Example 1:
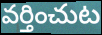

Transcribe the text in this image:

వర్తించుట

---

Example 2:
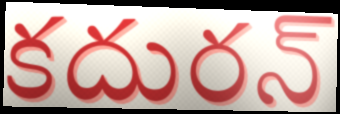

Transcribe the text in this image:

కదురన్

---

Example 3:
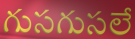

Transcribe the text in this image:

గుసగుసలే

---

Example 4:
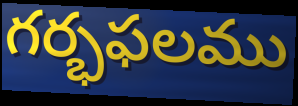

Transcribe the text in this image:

గర్భఫలము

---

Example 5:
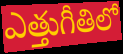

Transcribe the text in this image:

ఎత్తుగీతిలో